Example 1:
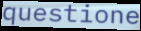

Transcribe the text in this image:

questione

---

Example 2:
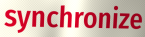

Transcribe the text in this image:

synchronize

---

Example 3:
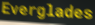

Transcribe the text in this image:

Everglades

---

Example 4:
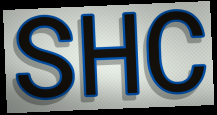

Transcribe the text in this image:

SHC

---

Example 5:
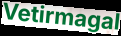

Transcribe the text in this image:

Vetirmagal